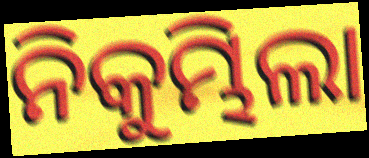
ନିକୁମ୍ଭିଲା